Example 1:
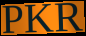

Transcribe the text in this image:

PKR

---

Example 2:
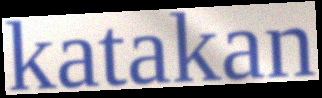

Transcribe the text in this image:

katakan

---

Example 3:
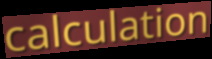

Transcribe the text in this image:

calculation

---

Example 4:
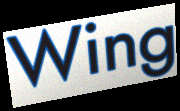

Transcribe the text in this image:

Wing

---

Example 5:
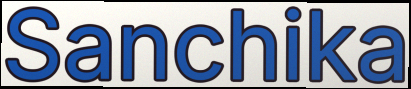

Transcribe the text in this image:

Sanchika